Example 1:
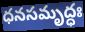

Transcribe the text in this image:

ధనసమృద్ధః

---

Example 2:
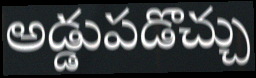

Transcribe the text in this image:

అడ్డుపడొచ్చు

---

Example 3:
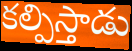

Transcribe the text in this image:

కల్పిస్తాడు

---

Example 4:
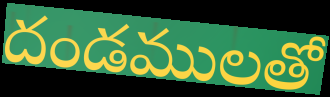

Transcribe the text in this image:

దండములతో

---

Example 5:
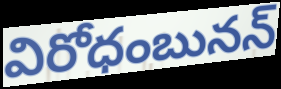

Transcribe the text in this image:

విరోధంబునన్